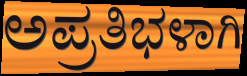
ಅಪ್ರತಿಭಳಾಗಿ